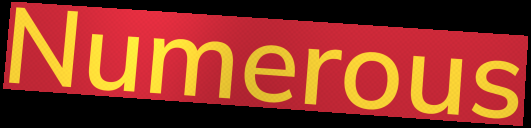
Numerous